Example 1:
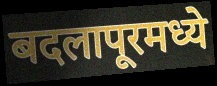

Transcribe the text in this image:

बदलापूरमध्ये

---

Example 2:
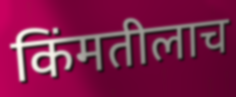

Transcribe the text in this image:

किंमतीलाच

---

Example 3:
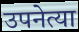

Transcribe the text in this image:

उपनेत्या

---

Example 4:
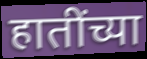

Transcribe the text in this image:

हातींच्या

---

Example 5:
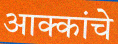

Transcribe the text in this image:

आक्कांचे